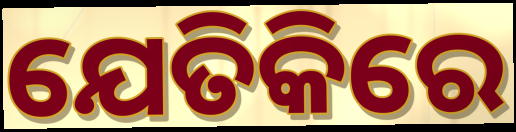
ଯେତିକିରେ